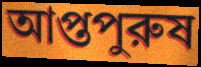
আপ্তপুরুষ